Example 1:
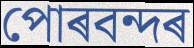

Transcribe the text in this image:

পোৰবন্দৰ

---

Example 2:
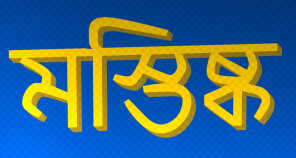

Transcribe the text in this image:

মস্তিষ্ক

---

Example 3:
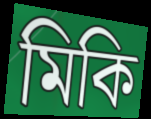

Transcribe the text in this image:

মিকি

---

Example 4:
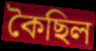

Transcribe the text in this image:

কৈছিল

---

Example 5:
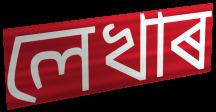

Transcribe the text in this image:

লেখাৰ